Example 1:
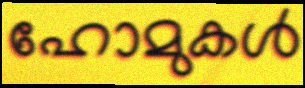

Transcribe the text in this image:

ഹോമുകൾ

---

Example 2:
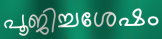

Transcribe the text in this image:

പൂജിച്ചശേഷം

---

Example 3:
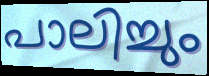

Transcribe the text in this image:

പാലിച്ചും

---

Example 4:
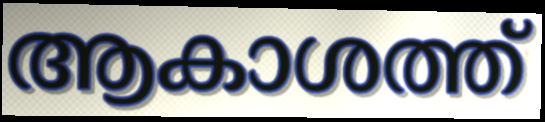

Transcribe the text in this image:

ആകാശത്ത്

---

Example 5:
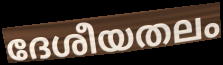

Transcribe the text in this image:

ദേശീയതലം